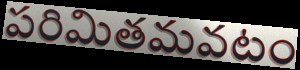
పరిమితమవటం